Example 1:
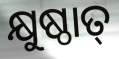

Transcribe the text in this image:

କ୍ଷୁଷ୍ଠାତ୍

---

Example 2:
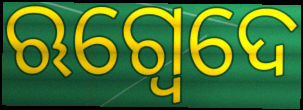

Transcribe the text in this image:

ଋଗ୍ଵେଦେ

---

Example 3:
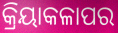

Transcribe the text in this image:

କ୍ରିୟାକଳାପର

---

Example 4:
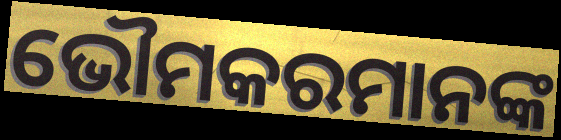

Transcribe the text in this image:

ଭୌମକରମାନଙ୍କ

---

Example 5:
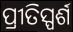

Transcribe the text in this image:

ପ୍ରୀତିସ୍ପର୍ଶ